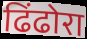
ढिंढोरा